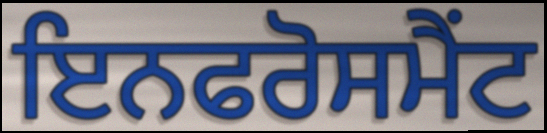
ਇਨਫਰੋਸਮੈਂਟ